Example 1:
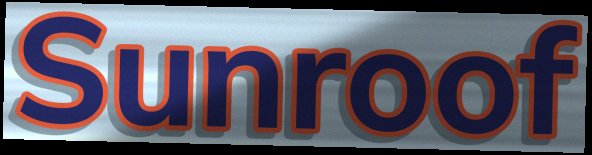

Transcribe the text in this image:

Sunroof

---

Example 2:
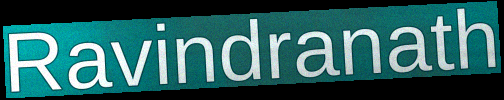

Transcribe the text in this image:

Ravindranath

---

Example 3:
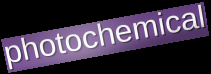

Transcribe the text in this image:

photochemical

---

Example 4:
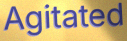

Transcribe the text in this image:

Agitated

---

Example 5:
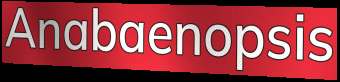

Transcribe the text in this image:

Anabaenopsis